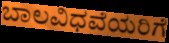
ಬಾಲವಿಧವೆಯರಿಗೆ